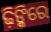
ଢ଼ିଙ୍କିରେ